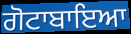
ਗੋਟਾਬਾਇਆ